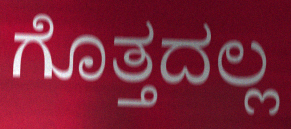
ಗೊತ್ತದಲ್ಲ